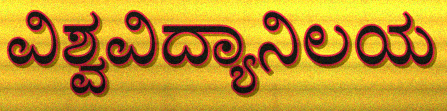
ವಿಶ್ವವಿದ್ಯಾನಿಲಯ